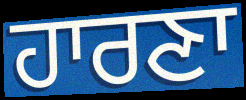
ਹਾਰਣਾ